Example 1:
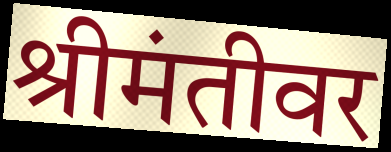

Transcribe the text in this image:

श्रीमंतीवर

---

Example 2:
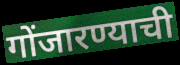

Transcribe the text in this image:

गोंजारण्याची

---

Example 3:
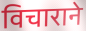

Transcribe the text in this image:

विचाराने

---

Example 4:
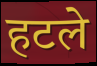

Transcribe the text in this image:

हटले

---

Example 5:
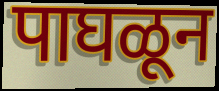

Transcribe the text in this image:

पाघळून